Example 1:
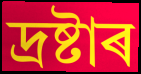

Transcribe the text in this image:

দ্ৰষ্টাৰ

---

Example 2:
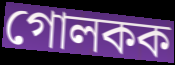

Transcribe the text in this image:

গোলকক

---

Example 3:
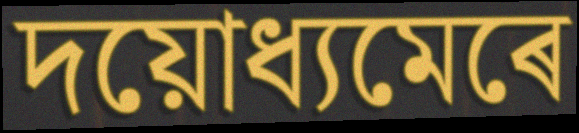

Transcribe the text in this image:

দয়োধ্যমেৰে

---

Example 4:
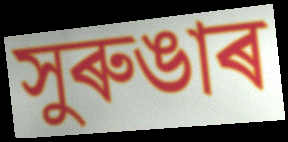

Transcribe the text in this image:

সুৰুঙাৰ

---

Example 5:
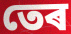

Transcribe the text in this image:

তেৰ